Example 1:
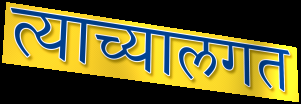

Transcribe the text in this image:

त्याच्यालगत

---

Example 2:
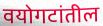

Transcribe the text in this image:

वयोगटांतील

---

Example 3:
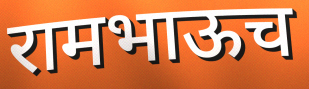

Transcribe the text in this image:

रामभाऊच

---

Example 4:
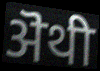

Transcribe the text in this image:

ऄथी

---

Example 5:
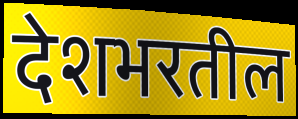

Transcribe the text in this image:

देशभरतील